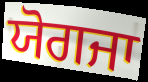
ਯੋਗਜਾ